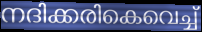
നദിക്കരികെവെച്ച്